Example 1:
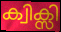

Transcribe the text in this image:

ക്വിക്സി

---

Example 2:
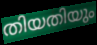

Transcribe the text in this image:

തിയതിയും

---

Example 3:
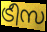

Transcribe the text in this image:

ട്രീസ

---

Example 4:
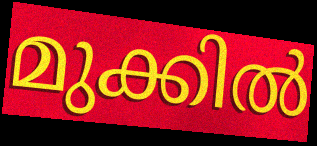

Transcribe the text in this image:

മുക്കിൽ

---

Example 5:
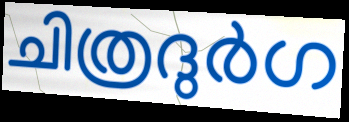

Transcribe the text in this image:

ചിത്രദുർഗ